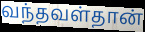
வந்தவள்தான்